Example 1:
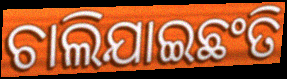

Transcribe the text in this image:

ଚାଲିଯାଇଛଂତି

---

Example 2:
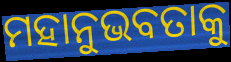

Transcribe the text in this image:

ମହାନୁଭବତାକୁ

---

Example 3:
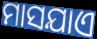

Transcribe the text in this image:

ମାସଯାଏ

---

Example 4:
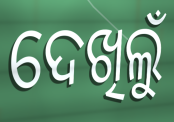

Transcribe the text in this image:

ଦେଖିଲୁଁ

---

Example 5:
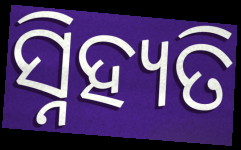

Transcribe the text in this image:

ସ୍ନିହ୍ୟତି